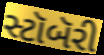
સ્ટૉબૅરી